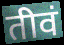
तीवं